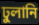
ঢুলানি